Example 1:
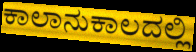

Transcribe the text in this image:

ಕಾಲಾನುಕಾಲದಲ್ಲಿ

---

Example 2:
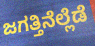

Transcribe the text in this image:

ಜಗತ್ತಿನೆಲ್ಲೆಡೆ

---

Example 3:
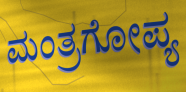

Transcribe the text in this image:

ಮಂತ್ರಗೋಪ್ಯ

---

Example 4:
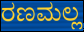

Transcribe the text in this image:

ರಣಮಲ್ಲ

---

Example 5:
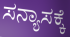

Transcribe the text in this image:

ಸನ್ಯಾಸಕ್ಕೆ